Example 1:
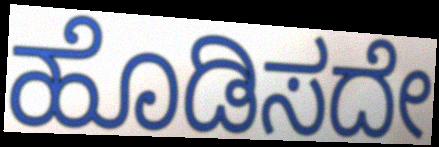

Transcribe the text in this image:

ಹೊಡಿಸದೇ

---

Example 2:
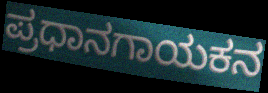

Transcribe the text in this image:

ಪ್ರಧಾನಗಾಯಕನ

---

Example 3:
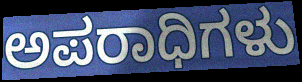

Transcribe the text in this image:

ಅಪರಾಧಿಗಳು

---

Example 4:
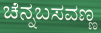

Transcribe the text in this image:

ಚೆನ್ನಬಸವಣ್ಣ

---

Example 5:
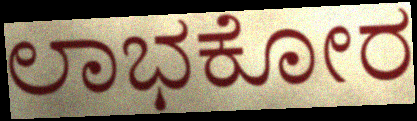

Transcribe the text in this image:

ಲಾಭಕೋರ